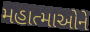
મહાત્માઓને